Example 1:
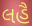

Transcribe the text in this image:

લહૈ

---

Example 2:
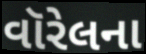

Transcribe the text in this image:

વૉરેલના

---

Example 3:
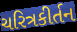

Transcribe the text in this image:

ચરિત્રકીર્તન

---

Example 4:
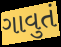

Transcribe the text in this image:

ગાવુતં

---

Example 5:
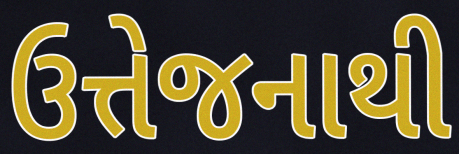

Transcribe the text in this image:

ઉત્તેજનાથી